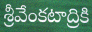
శ్రీవేంకటాద్రికి